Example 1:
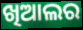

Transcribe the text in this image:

ଖିଆଲର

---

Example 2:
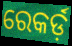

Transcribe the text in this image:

ରେକର୍ଡ଼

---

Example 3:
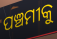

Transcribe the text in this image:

ପଞ୍ଚମୀକୁ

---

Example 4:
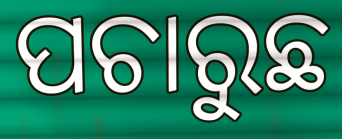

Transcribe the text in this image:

ପଚାରୁଛ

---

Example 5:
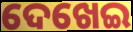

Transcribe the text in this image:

ଦେଖେଇ